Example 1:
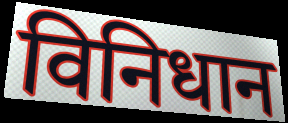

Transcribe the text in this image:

विनिधान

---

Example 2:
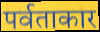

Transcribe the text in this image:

पर्वताकार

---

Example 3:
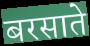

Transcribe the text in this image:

बरसाते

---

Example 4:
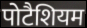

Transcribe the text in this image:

पोटैशियम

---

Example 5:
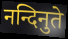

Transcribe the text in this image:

नन्दिनुते